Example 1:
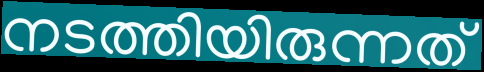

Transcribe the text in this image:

നടത്തിയിരുന്നത്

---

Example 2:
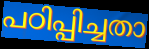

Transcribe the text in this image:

പഠിപ്പിച്ചതാ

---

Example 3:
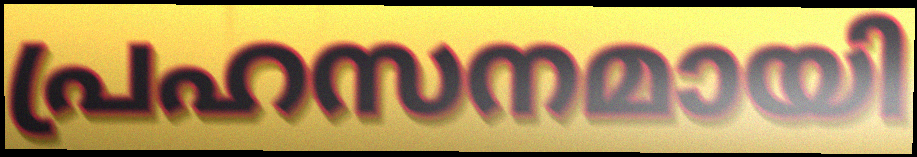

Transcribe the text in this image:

പ്രഹസനമായി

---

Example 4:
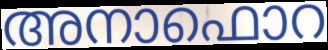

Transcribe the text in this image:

അനാഫൊറ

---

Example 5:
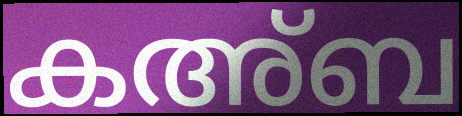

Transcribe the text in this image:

കഅ്ബ